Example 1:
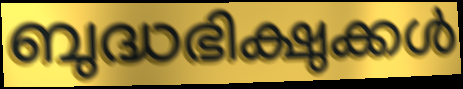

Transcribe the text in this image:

ബുദ്ധഭിക്ഷുക്കൾ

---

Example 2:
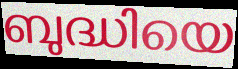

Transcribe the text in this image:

ബുദ്ധിയെ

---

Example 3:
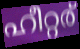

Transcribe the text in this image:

ഹീറ്റര്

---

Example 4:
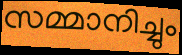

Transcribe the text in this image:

സമ്മാനിച്ചും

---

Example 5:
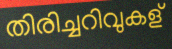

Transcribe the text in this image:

തിരിച്ചറിവുകള്